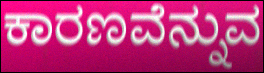
ಕಾರಣವೆನ್ನುವ